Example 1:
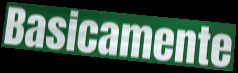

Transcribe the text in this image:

Basicamente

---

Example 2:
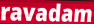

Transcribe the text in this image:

ravadam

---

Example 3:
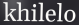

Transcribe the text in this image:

khilelo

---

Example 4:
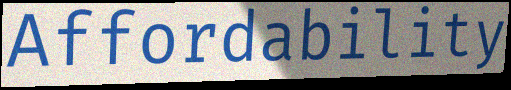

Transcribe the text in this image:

Affordability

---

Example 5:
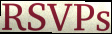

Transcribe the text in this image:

RSVPs